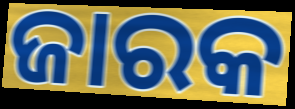
ଜାରକ